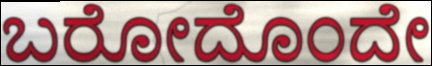
ಬರೋದೊಂದೇ